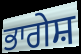
ਭਾਗੇਸ਼